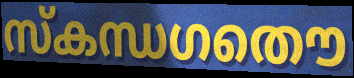
സ്കന്ധഗതൌ